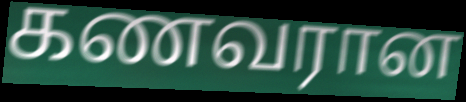
கணவரான